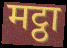
मट्ठा